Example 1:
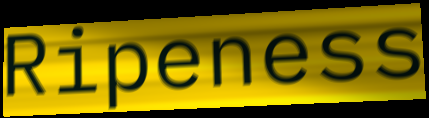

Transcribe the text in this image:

Ripeness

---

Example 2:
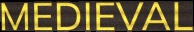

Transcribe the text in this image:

MEDIEVAL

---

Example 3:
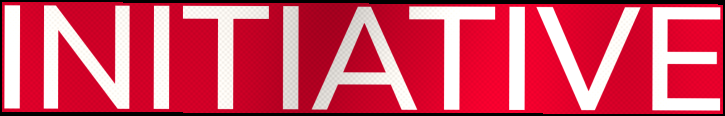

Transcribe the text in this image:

INITIATIVE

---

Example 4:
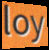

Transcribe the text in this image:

loy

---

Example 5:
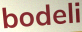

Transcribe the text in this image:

bodeli